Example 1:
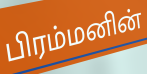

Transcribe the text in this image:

பிரம்மனின்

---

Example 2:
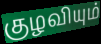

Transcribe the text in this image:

குழவியும்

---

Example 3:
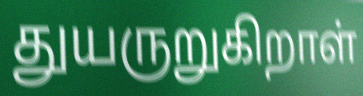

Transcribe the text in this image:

துயருறுகிறாள்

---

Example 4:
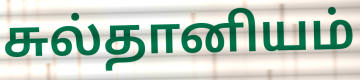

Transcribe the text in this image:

சுல்தானியம்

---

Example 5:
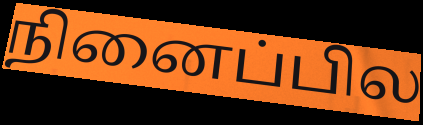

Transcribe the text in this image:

நினைப்பில